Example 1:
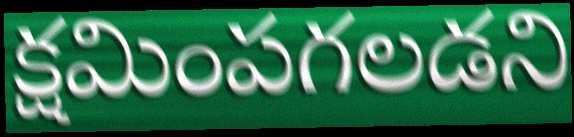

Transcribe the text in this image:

క్షమింపగలడని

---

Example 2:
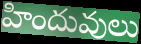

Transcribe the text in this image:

హిందువులు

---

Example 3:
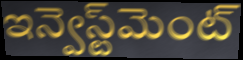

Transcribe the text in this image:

ఇన్వెస్ట్‌మెంట్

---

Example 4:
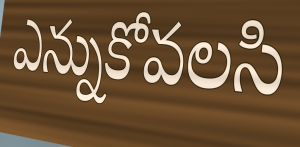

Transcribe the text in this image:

ఎన్నుకోవలసి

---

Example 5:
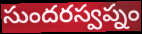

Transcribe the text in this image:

సుందరస్వప్నం